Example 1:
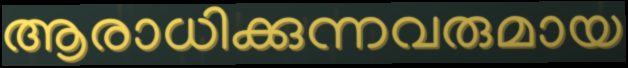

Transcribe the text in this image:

ആരാധിക്കുന്നവരുമായ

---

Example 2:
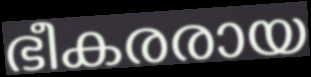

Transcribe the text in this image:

ഭീകരരായ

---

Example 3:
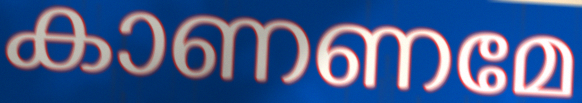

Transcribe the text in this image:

കാണണമേ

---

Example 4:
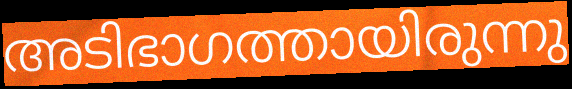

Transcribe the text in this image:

അടിഭാഗത്തായിരുന്നു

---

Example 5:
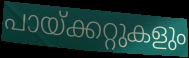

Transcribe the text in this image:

പായ്ക്കറ്റുകളും